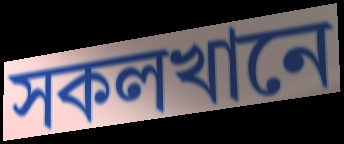
সকলখানে